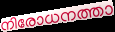
നിരോധനത്താ